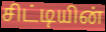
சிட்டியின்